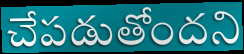
చేపడుతోందని